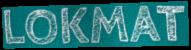
LOKMAT